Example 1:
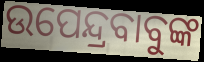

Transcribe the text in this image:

ଉପେନ୍ଦ୍ରବାବୁଙ୍କ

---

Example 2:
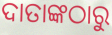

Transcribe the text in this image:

ଦାତାଙ୍କଠାରୁ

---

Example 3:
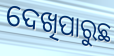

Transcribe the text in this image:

ଦେଖିପାରୁଛ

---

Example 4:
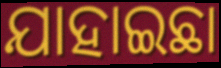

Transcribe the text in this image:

ଯାହାଇଛା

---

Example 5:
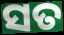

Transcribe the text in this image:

ସତ